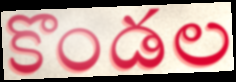
కొండల